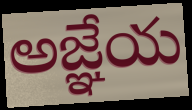
అజ్ఞేయ